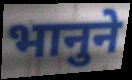
भानुने